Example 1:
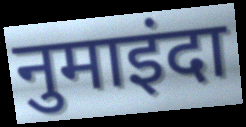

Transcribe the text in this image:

नुमाइंदा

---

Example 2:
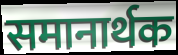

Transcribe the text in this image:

समानार्थक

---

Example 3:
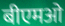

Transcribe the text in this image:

बीएमओ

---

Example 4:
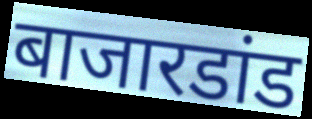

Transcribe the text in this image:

बाजारडांड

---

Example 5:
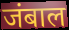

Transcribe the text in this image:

जंबाल